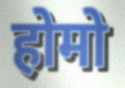
होमो